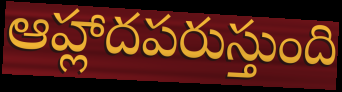
ఆహ్లాదపరుస్తుంది